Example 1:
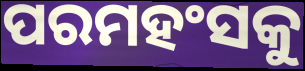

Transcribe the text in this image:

ପରମହଂସକୁ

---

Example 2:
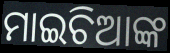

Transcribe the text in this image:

ମାଇଚିଆଙ୍କ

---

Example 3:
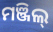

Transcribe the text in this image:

ମଞ୍ଜିଲ୍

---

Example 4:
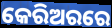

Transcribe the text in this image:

କେରିଅରରେ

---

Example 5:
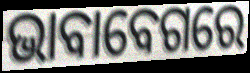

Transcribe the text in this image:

ଭାବାବେଗରେ